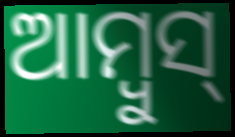
ଆମ୍ବୁସ୍